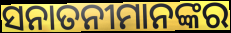
ସନାତନୀମାନଙ୍କର